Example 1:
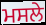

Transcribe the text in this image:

ਮਸਲੇ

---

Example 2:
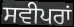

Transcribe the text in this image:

ਸਵੀਪਰਾਂ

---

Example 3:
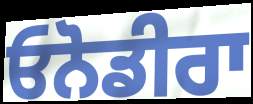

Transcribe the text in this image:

ਓਨੋਡੀਰਾ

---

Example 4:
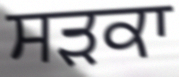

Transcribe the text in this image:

ਸੜਕਾ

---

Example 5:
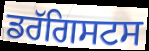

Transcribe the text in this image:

ਡਰੱਗਿਸਟਸ